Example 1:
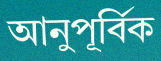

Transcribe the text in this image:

আনুপূর্বিক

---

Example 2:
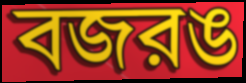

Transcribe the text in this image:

বজরঙ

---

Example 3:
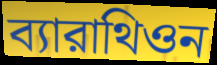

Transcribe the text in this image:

ব্যারাথিওন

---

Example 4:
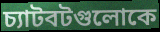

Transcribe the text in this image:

চ্যাটবটগুলোকে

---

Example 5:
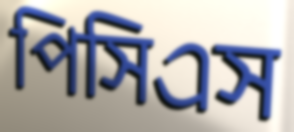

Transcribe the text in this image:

পিসিএস